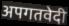
अपगतवेदी